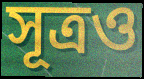
সূত্ৰও